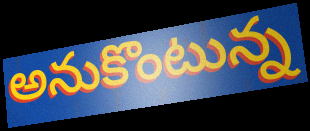
అనుకొంటున్న